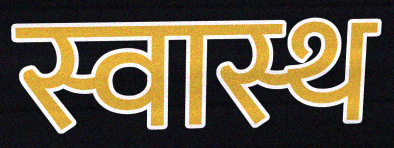
स्वास्थ